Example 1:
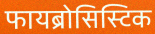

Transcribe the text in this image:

फायब्रोसिस्टिक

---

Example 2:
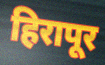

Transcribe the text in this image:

हिरापूर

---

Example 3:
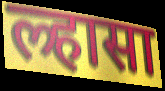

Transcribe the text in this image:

ल्हासा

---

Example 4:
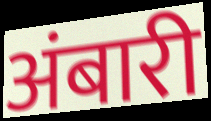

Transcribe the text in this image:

अंबारी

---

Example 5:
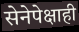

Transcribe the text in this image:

सेनेपेक्षाही